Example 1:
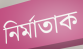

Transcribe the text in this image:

নিৰ্মাতাক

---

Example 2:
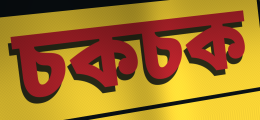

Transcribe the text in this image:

চকচক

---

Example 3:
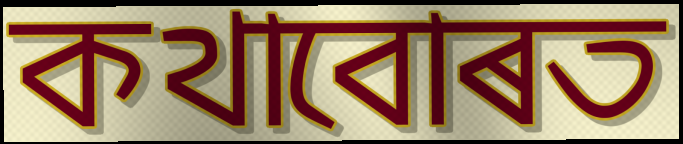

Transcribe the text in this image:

কথাবোৰত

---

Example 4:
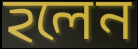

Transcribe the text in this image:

হলেন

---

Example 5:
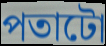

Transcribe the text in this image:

পতাটো